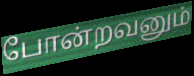
போன்றவனும்